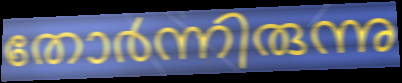
തോർന്നിരുന്നു